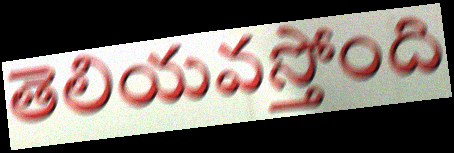
తెలియవస్తోంది